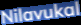
Nilavukal